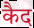
कैद